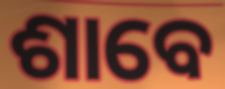
ଶାବେ